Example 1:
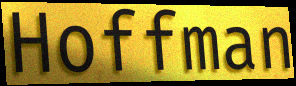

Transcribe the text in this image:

Hoffman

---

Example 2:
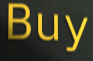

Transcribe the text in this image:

Buy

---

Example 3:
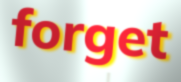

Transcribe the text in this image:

forget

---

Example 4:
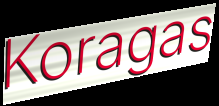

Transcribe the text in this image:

Koragas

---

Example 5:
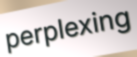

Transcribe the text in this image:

perplexing